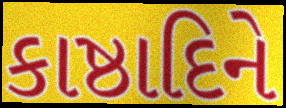
કાષ્ઠાદિને